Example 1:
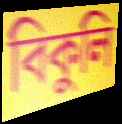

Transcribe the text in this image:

বিকুলি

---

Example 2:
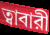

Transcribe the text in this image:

ত্বাবারী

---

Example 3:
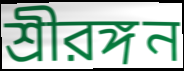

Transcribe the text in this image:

শ্রীরঙ্গন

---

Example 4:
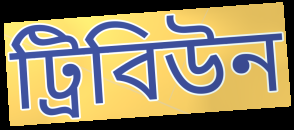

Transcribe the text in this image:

ট্রিবিউন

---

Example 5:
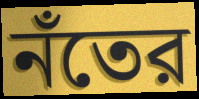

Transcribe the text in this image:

নঁতের